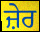
ਜ਼ੇਰ